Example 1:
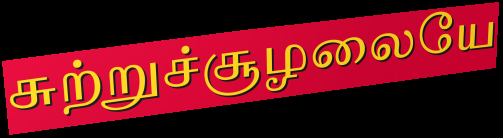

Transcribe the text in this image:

சுற்றுச்சூழலையே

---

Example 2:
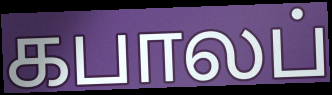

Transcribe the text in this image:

கபாலப்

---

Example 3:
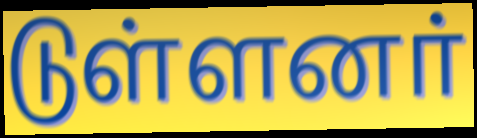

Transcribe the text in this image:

டுள்ளனர்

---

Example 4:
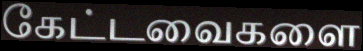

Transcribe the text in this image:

கேட்டவைகளை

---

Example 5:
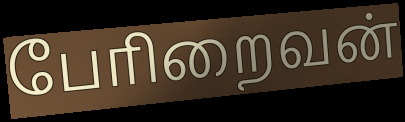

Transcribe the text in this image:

பேரிறைவன்